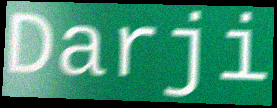
Darji